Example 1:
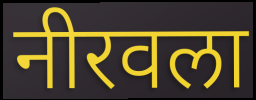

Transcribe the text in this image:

नीरवला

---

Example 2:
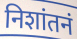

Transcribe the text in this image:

निशांतनं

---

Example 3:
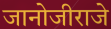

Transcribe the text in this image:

जानोजीराजे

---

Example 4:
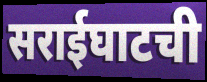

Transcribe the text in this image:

सराईघाटची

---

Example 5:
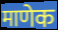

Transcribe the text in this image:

माणेक